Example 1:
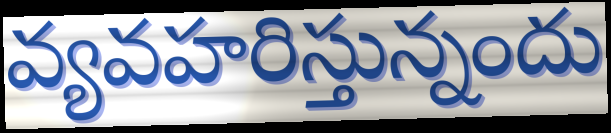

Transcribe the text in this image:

వ్యవహరిస్తున్నందు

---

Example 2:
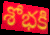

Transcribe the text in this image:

శోభకి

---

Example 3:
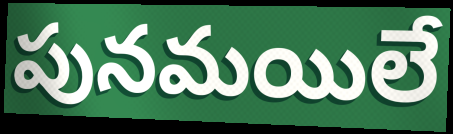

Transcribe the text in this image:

పునమయిలే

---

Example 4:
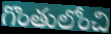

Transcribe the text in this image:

గొంతులోంచి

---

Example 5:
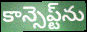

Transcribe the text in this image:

కాన్సెప్ట్‌ను